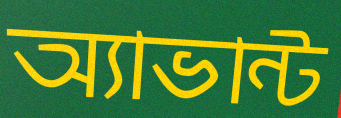
অ্যাভান্ট